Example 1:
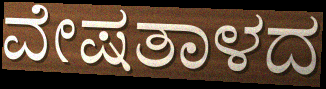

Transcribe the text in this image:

ವೇಷತಾಳದ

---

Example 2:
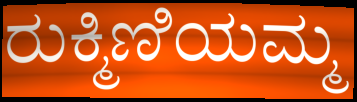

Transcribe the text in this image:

ರುಕ್ಮಿಣಿಯಮ್ಮ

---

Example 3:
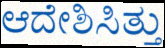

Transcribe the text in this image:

ಆದೇಶಿಸಿತ್ತು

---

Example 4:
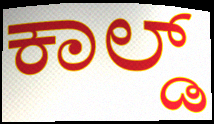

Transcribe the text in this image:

ಕಾಲ್ಡ್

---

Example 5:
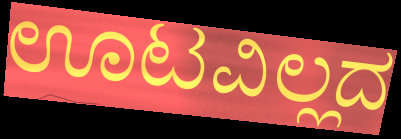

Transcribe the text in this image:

ಊಟವಿಲ್ಲದ